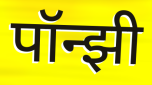
पॉन्झी